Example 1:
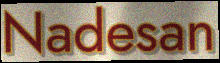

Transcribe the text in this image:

Nadesan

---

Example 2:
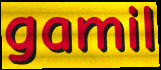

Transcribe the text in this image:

gamil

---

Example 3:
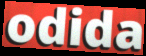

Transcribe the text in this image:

odida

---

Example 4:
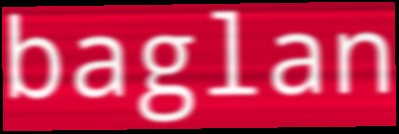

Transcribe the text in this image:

baglan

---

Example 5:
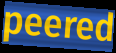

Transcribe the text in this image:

peered